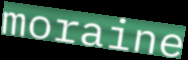
moraine